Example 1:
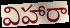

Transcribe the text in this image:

విహారా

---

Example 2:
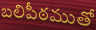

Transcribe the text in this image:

బలిపీఠముతో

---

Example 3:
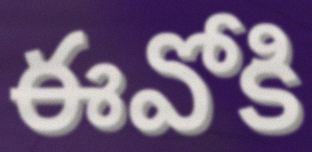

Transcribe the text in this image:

ఈవోకి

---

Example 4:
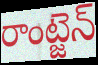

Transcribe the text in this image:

రాంట్జెన్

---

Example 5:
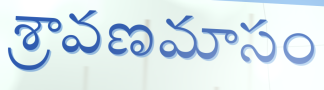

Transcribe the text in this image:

శ్రావణమాసం